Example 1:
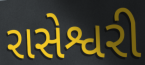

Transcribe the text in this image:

રાસેશ્વરી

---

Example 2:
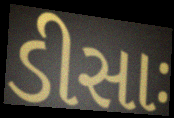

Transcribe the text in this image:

ડીસાઃ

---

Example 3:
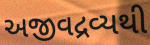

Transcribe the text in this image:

અજીવદ્રવ્યથી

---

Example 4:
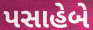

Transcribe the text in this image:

પસાહેબે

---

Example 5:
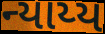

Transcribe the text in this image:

ન્યાય્ય